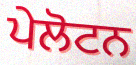
ਪੇਲੋਟਨ